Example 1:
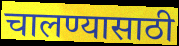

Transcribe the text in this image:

चालण्यासाठी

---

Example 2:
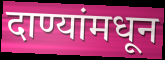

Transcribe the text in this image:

दाण्यांमधून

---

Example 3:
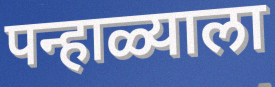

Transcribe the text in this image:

पन्हाळ्याला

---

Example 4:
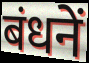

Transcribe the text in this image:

बंधनें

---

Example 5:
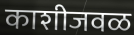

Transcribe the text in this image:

काशीजवळ